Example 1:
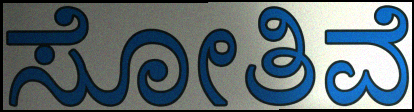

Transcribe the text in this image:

ಸೋತಿವೆ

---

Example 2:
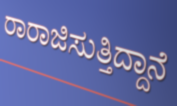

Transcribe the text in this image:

ರಾರಾಜಿಸುತ್ತಿದ್ದಾನೆ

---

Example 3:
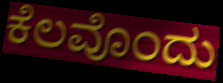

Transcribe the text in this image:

ಕೆಲವೊಂದು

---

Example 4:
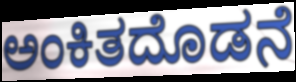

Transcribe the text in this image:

ಅಂಕಿತದೊಡನೆ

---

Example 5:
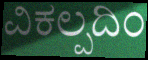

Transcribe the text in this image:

ವಿಕಲ್ಪದಿಂ